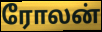
ரோலன்